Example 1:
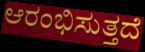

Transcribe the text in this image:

ಆರಂಭಿಸುತ್ತದೆ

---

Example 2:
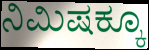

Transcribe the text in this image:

ನಿಮಿಷಕ್ಕೂ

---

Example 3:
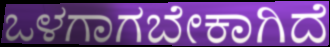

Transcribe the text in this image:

ಒಳಗಾಗಬೇಕಾಗಿದೆ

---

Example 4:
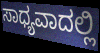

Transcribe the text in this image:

ಸಾಧ್ಯವಾದಲ್ಲಿ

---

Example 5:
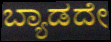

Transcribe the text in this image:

ಬ್ಯಾಡದೇ